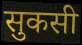
सुकसी